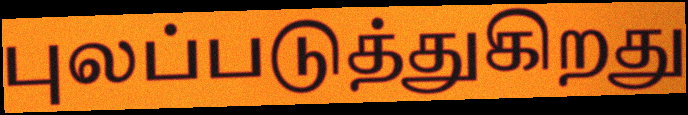
புலப்படுத்துகிறது